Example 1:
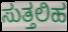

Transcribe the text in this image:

ಸುತ್ತಲಿಹ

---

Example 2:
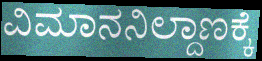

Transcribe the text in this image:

ವಿಮಾನನಿಲ್ದಾಣಕ್ಕೆ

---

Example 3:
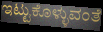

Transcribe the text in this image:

ಇಟ್ಟುಕೊಳ್ಳುವಂತೆ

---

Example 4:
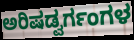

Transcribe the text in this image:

ಅರಿಷಡ್ವರ್ಗಂಗಳ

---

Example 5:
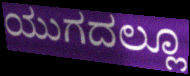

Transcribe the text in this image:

ಯುಗದಲ್ಲೂ